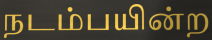
நடம்பயின்ற